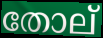
തോല്